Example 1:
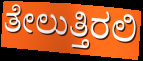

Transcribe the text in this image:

ತೇಲುತ್ತಿರಲಿ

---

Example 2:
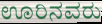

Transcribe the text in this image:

ಊರಿನವರು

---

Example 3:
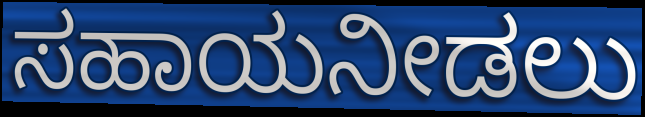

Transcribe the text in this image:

ಸಹಾಯನೀಡಲು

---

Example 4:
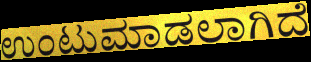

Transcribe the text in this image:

ಉಂಟುಮಾಡಲಾಗಿದೆ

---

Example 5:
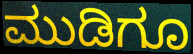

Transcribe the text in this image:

ಮುಡಿಗೂ